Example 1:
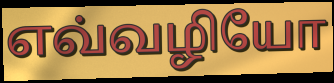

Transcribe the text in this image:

எவ்வழியோ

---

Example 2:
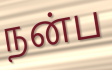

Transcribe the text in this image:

நன்ப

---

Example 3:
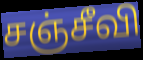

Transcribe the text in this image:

சஞ்சீவி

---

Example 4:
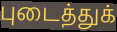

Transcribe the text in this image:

புடைத்துக்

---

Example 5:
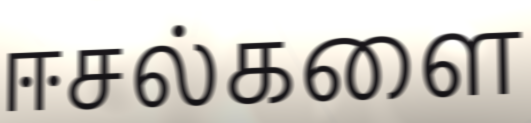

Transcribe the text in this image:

ஈசல்களை